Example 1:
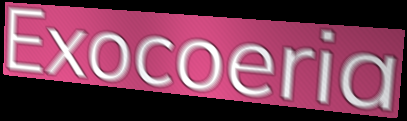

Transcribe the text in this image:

Exocoeria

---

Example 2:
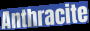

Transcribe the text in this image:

Anthracite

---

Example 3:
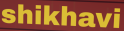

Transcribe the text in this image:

shikhavi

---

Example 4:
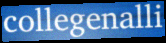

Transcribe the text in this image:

collegenalli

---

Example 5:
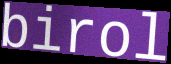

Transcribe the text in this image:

birol